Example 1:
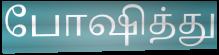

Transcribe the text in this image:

போஷித்து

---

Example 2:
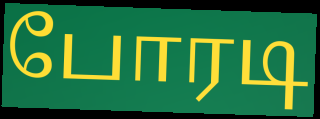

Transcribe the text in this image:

போரடி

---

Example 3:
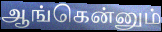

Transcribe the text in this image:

ஆங்கென்னும்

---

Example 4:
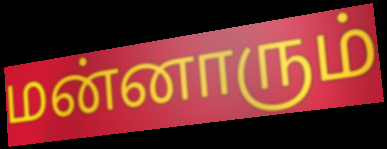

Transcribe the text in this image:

மன்னாரும்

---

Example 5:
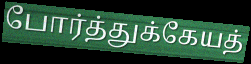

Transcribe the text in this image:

போர்த்துக்கேயத்